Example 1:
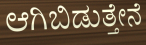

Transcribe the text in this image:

ಆಗಿಬಿಡುತ್ತೇನೆ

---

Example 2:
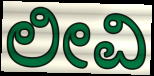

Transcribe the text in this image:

ಲೀವಿ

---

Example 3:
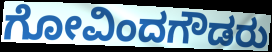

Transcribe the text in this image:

ಗೋವಿಂದಗೌಡರು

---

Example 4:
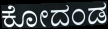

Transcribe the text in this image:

ಕೋದಂಡ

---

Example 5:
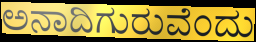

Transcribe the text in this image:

ಅನಾದಿಗುರುವೆಂದು